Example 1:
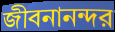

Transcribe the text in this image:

জীবনানন্দর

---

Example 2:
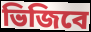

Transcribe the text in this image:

ভিজিবে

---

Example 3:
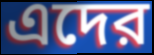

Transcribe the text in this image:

এদের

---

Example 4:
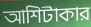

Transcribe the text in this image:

আশিটাকার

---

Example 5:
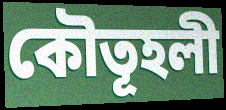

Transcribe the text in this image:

কৌতূহলী